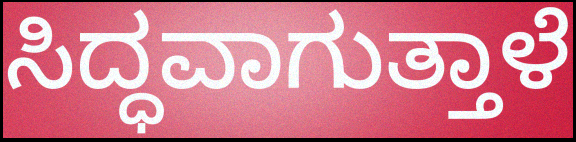
ಸಿದ್ಧವಾಗುತ್ತಾಳೆ